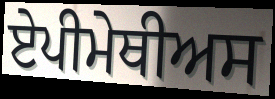
ਏਪੀਮੇਥੀਅਸ